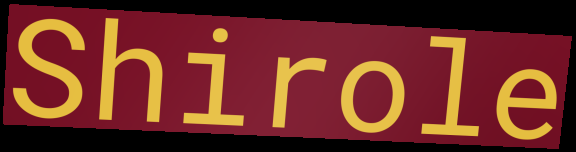
Shirole